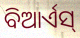
ବିଆର୍ଏସ୍